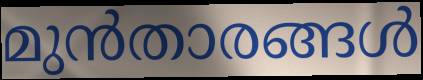
മുൻതാരങ്ങൾ